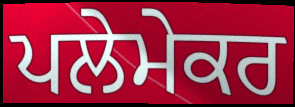
ਪਲੇਮੇਕਰ